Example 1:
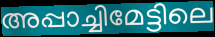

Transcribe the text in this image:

അപ്പാച്ചിമേട്ടിലെ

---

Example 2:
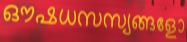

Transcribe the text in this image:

ഔഷധസസ്യങ്ങളോ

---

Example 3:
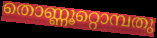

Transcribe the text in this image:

തൊണ്ണൂറ്റൊമ്പതു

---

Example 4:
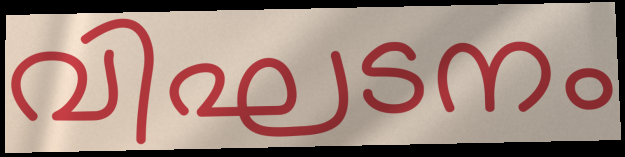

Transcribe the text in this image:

വിഘടനം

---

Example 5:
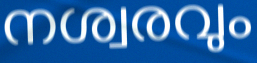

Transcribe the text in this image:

നശ്വരവും